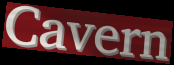
Cavern